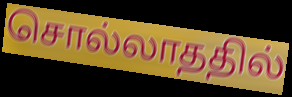
சொல்லாததில்